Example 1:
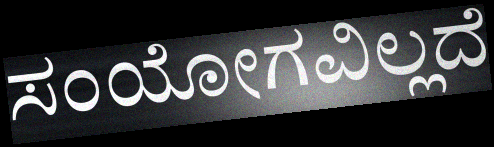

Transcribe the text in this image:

ಸಂಯೋಗವಿಲ್ಲದೆ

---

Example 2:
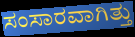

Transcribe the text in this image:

ಸಂಸಾರವಾಗಿತ್ತು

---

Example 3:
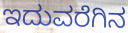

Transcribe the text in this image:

ಇದುವರೆಗಿನ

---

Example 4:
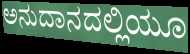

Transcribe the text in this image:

ಅನುದಾನದಲ್ಲಿಯೂ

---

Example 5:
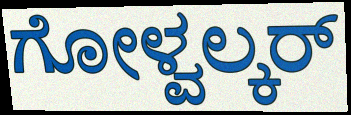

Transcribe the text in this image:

ಗೋಳ್ವಲ್ಕರ್